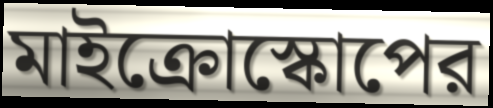
মাইক্রোস্কোপের